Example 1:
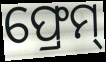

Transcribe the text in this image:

ଫ୍ରେମ୍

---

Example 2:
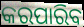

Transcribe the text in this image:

କରପାରିବ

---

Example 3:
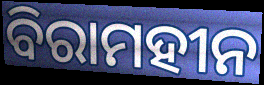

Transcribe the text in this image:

ବିରାମହୀନ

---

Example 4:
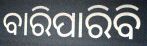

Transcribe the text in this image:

ବାରିପାରିବି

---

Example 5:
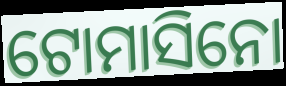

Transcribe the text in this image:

ଟୋମାସିନୋ